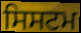
ਸਿਸਟਮ